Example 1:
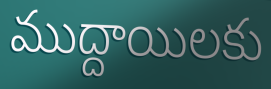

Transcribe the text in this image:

ముద్దాయిలకు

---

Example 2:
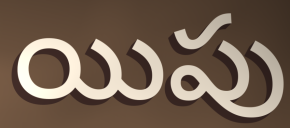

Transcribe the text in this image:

యిపు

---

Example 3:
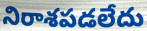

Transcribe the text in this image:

నిరాశపడలేదు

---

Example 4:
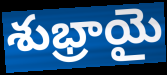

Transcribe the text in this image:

శుభ్రాయై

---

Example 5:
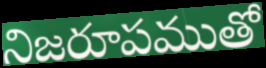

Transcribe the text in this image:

నిజరూపముతో